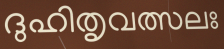
ദുഹിതൃവത്സലഃ